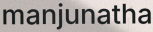
manjunatha